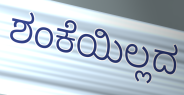
ಶಂಕೆಯಿಲ್ಲದ